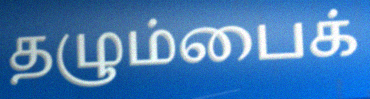
தழும்பைக்